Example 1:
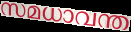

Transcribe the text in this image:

സമധാവന്ത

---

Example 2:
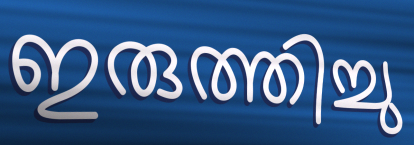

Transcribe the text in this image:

ഇരുത്തിച്ചു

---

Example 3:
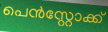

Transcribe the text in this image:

പെൻസ്റ്റോക്ക്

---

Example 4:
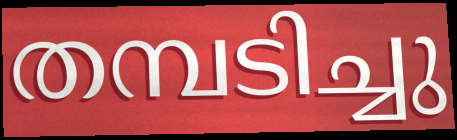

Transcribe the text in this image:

തമ്പടിച്ചു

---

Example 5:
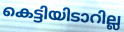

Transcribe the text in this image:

കെട്ടിയിടാറില്ല